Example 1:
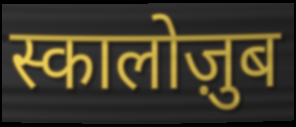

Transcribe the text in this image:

स्कालोज़ुब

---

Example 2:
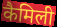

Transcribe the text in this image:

कैमिली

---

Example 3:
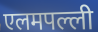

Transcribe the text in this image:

एलमपल्ली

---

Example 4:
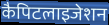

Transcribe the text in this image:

कैपिटलाइजेशन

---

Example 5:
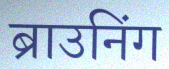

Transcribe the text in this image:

ब्राउनिंग